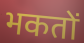
भकतों